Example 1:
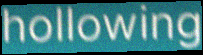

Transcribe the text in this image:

hollowing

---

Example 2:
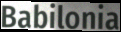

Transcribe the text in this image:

Babilonia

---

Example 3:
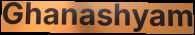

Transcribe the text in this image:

Ghanashyam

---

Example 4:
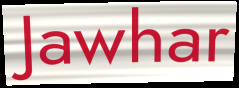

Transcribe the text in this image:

Jawhar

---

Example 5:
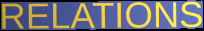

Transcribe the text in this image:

RELATIONS